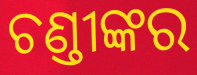
ଚଣ୍ଡୀଙ୍କର